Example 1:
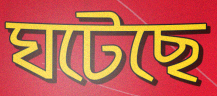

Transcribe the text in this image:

ঘটেছে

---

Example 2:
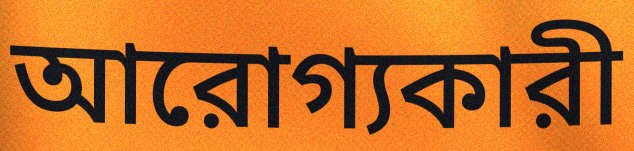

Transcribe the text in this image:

আরোগ্যকারী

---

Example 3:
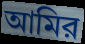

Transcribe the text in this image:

আমির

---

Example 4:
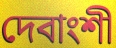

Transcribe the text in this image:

দেবাংশী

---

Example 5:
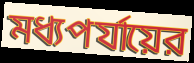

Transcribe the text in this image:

মধ্যপর্যায়ের